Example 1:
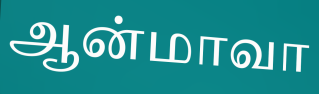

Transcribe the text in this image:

ஆன்மாவா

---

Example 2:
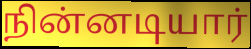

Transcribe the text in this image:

நின்னடியார்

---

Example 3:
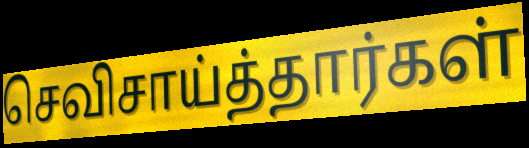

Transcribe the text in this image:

செவிசாய்த்தார்கள்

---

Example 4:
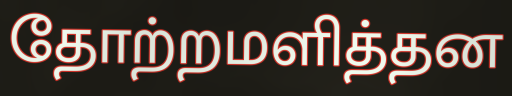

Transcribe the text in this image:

தோற்றமளித்தன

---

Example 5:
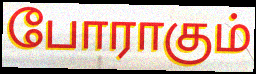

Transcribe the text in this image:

போராகும்